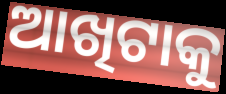
ଆଖିଟାକୁ